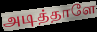
அடித்தாளே